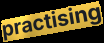
practising